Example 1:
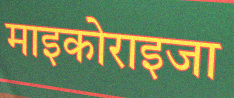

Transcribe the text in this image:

माइकोराइजा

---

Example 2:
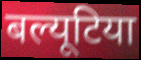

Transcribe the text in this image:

बल्यूटिया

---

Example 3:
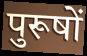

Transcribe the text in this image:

पुरूषों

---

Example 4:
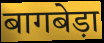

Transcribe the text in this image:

बागबेड़ा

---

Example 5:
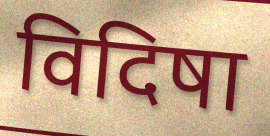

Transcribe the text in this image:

विदिषा